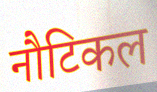
नौटिकल